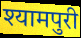
श्यामपुरी